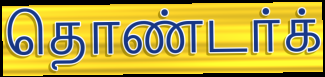
தொண்டர்க்